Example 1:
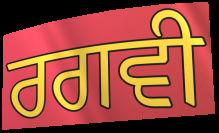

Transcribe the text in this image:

ਰਗਵੀ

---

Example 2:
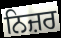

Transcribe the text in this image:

ਨਿਜ਼ਰ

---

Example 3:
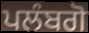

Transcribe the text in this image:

ਪਲੰਬਗੋ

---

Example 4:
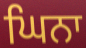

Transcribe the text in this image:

ਘਿਨਾ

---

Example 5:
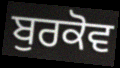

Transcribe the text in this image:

ਬੁਰਕੋਵ